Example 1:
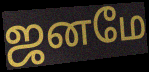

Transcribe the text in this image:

ஜனமே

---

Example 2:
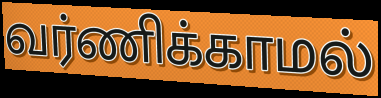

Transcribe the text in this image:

வர்ணிக்காமல்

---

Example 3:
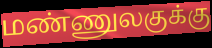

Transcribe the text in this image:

மண்ணுலகுக்கு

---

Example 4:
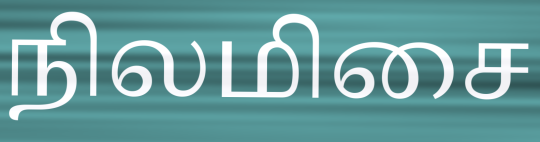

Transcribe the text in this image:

நிலமிசை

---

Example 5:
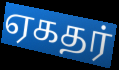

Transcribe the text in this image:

ஏகதர்